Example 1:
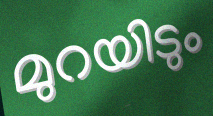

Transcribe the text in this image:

മുറയിടും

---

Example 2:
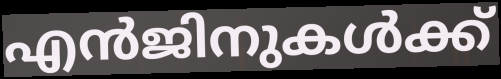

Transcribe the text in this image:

എൻജിനുകൾക്ക്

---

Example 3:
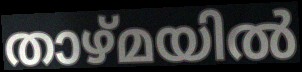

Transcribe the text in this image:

താഴ്മയിൽ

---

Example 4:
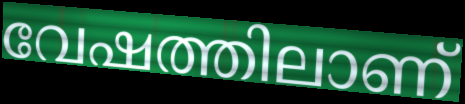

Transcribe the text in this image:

വേഷത്തിലാണ്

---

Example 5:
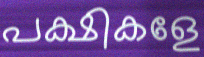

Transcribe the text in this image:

പക്ഷികളേ